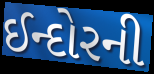
ઈન્દોરની